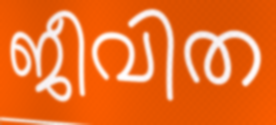
ജീവിത